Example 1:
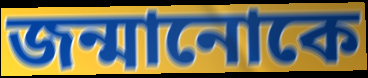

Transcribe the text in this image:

জন্মানোকে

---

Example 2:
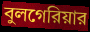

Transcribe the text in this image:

বুলগেরিয়ার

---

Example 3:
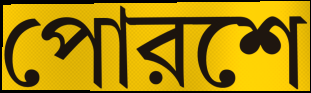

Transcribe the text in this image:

পোরশে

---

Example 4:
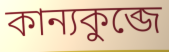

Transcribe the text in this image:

কান্যকুব্জে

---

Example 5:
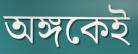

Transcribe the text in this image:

অঙ্গকেই